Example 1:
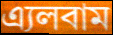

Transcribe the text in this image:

এ্যলবাম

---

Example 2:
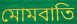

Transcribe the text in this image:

মোমবাতি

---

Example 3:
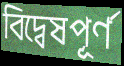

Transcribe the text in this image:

বিদ্বেষপূর্ণ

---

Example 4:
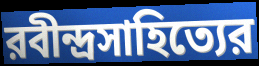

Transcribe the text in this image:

রবীন্দ্রসাহিত্যের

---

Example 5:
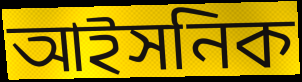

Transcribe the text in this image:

আইসনিক